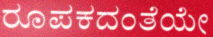
ರೂಪಕದಂತೆಯೇ